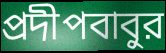
প্রদীপবাবুর